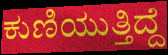
ಕುಣಿಯುತ್ತಿದ್ದೆ